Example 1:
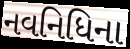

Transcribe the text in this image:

નવનિધિના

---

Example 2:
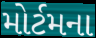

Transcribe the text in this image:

મોર્ટમના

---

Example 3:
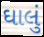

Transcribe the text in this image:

ઘાલું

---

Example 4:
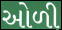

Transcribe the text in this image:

ઓળી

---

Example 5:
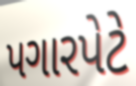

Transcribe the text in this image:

પગારપેટે